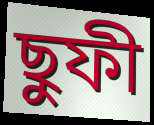
ছুফী